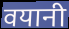
वयानी